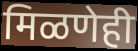
मिळणेही